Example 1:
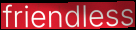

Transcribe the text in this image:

friendless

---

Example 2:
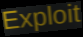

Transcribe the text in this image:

Exploit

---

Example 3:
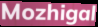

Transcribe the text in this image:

Mozhigal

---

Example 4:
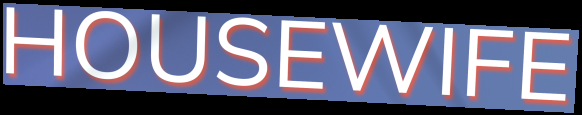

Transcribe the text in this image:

HOUSEWIFE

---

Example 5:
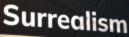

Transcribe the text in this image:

Surrealism